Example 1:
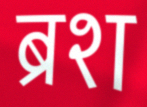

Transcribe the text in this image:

ब्रश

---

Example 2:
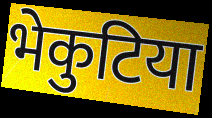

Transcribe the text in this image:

भेकुटिया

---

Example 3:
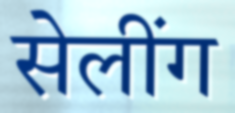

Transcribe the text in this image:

सेलींग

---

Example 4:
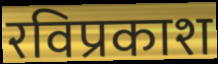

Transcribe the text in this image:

रविप्रकाश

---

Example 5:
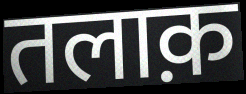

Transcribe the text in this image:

तलाक़